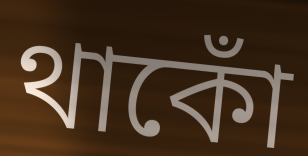
থাকোঁ